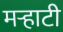
मऱ्हाटी